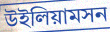
উইলিয়ামসন